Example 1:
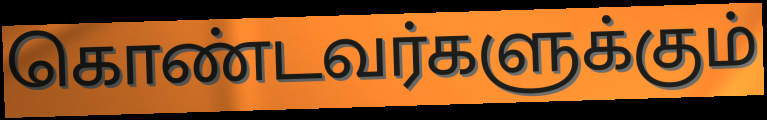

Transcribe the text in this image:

கொண்டவர்களுக்கும்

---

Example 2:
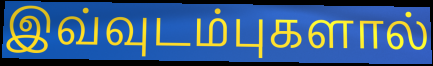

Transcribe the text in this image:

இவ்வுடம்புகளால்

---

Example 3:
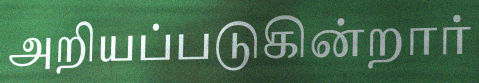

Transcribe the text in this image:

அறியப்படுகின்றார்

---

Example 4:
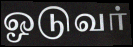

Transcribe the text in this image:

ஓடுவர்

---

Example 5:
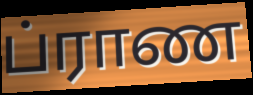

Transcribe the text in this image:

ப்ராண